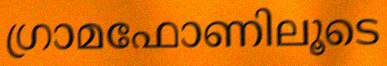
ഗ്രാമഫോണിലൂടെ